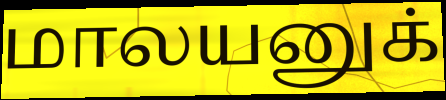
மாலயனுக்